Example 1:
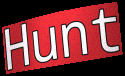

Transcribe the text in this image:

Hunt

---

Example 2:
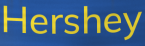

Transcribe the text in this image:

Hershey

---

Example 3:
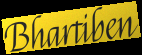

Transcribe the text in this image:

Bhartiben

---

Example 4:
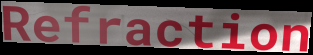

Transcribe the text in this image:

Refraction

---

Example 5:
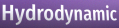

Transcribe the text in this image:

Hydrodynamic